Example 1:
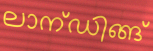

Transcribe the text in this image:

ലാന്ഡിങ്ങ്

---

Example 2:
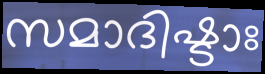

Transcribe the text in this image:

സമാദിഷ്ടാഃ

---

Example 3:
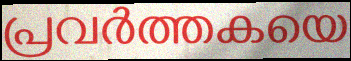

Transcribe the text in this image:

പ്രവർത്തകയെ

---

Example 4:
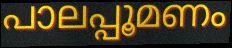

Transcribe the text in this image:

പാലപ്പൂമണം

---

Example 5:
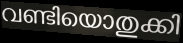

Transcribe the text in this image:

വണ്ടിയൊതുക്കി